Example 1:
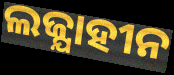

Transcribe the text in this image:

ଲଜ୍ଯାହୀନ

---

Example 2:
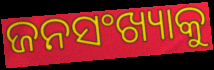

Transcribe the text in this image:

ଜନସଂଖ୍ୟାକୁ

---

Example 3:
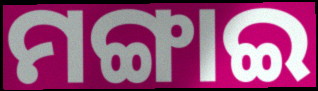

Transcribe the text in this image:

ମଙ୍ଗାଇ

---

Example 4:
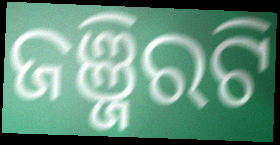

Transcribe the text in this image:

ଜଞ୍ଜିରଟି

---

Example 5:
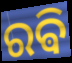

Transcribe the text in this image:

ରଵି